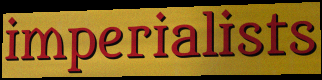
imperialists